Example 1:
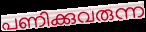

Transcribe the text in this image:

പണിക്കുവരുന്ന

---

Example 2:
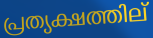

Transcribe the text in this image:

പ്രത്യക്ഷത്തില്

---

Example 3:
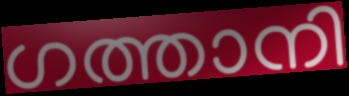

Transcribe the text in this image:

ഗത്താനി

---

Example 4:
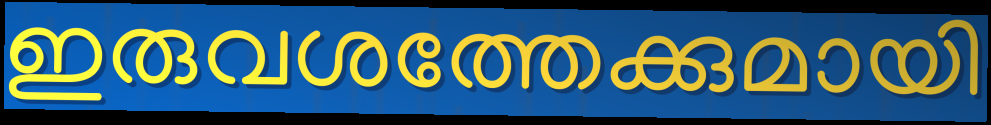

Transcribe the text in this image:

ഇരുവശത്തേക്കുമായി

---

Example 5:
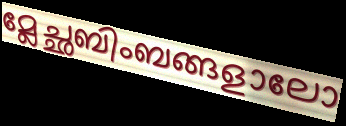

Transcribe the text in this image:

മ്ലേച്ഛബിംബങ്ങളാലോ